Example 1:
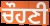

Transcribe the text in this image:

ਚੌਹਣੀ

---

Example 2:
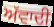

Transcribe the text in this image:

ਅੱਵਾਦੀ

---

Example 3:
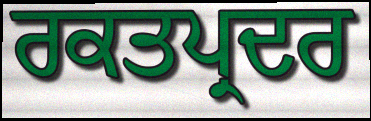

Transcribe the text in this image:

ਰਕਤਪ੍ਰਦਰ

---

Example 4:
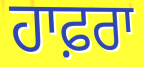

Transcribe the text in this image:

ਹਾਫ਼ਰਾ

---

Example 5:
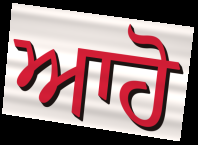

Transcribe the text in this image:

ਆਹੋ